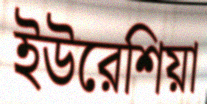
ইউরেশিয়া